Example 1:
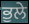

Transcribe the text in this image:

ਭੁਲੇ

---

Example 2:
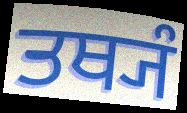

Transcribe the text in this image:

ਤਥ੍ਯੰ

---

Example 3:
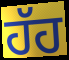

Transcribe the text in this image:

ਹੱਹ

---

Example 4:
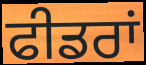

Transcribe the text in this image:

ਫੀਡਰਾਂ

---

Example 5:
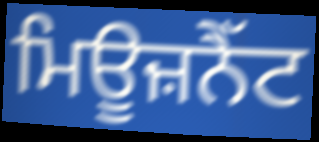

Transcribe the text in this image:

ਮਿਊਜ਼ਨੈੱਟ